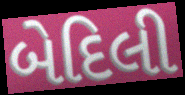
બેદિલી